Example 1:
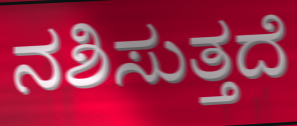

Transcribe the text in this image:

ನಶಿಸುತ್ತದೆ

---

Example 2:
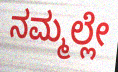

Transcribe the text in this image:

ನಮ್ಮಲ್ಲೇ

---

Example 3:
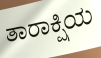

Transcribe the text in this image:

ತಾರಾಕ್ಷಿಯ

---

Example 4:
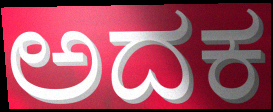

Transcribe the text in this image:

ಅದಕ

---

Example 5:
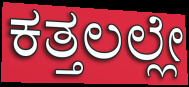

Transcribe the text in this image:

ಕತ್ತಲಲ್ಲೇ